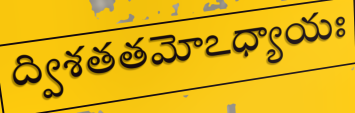
ద్విశతతమోఽధ్యాయః